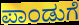
ಪಾಂಡುಗೆ